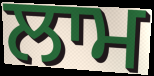
ਲਾਮ